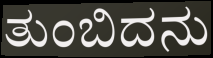
ತುಂಬಿದನು